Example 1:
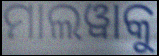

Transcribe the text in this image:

ମାଲୱାକୁ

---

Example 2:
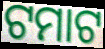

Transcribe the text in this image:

ଟମାଟ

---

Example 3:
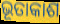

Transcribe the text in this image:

ଭୂତାକାଶ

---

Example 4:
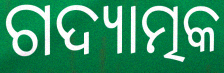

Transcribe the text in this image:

ଗଦ୍ୟାତ୍ମକ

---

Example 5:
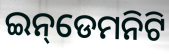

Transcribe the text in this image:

ଇନ୍‌ଡେମନିଟି